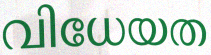
വിധേയത